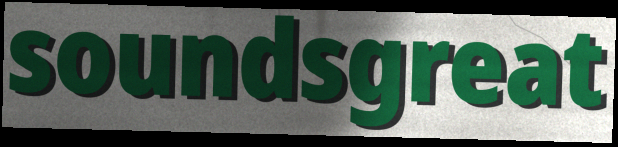
soundsgreat